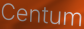
Centum